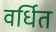
वर्धित